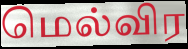
மெல்விர